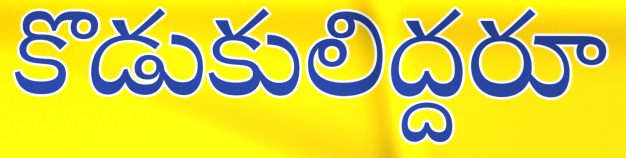
కొడుకులిద్దరూ